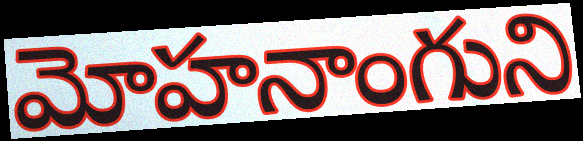
మోహనాంగుని